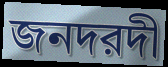
জনদরদী